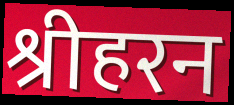
श्रीहरन